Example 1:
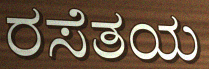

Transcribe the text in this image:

ರಸೆತಯ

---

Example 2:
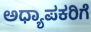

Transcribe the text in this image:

ಅಧ್ಯಾಪಕರಿಗೆ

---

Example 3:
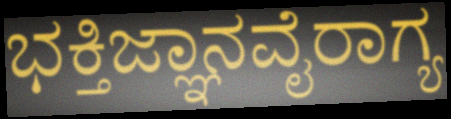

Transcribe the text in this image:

ಭಕ್ತಿಜ್ಞಾನವೈರಾಗ್ಯ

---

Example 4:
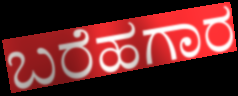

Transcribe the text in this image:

ಬರೆಹಗಾರ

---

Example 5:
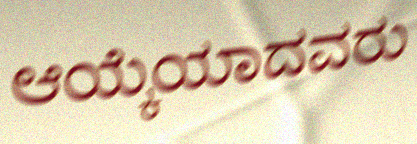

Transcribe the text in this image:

ಆಯ್ಕೆಯಾದವರು